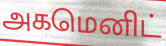
அகமெனிட்